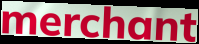
merchant